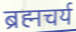
ब्रह्मचर्य